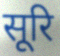
सूरि